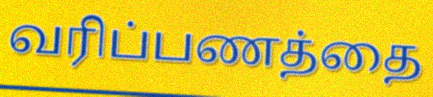
வரிப்பணத்தை